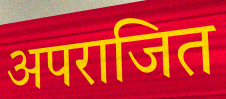
अपराजित